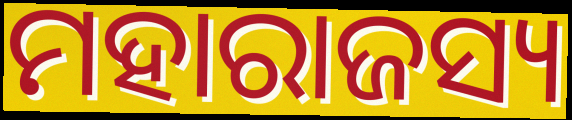
ମହାରାଜସ୍ୟ